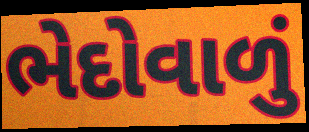
ભેદોવાળું